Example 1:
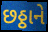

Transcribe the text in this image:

છઠ્ઠાને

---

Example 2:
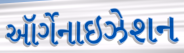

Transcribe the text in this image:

ઑર્ગેનાઇઝેશન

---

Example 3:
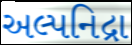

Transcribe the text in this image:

અલ્પનિદ્રા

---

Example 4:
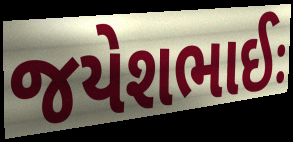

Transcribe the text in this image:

જયેશભાઈઃ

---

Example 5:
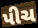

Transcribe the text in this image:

પીચ